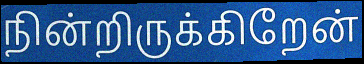
நின்றிருக்கிறேன்